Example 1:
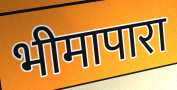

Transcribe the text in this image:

भीमापारा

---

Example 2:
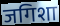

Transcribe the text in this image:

जगिशा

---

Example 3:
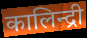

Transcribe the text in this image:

कालिन्द्री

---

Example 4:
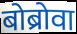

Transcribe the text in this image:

बोब्रोवा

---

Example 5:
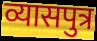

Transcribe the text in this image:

व्यासपुत्र